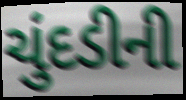
ચુંદડીની